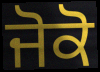
ਜੋਕੋ